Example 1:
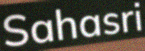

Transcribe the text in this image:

Sahasri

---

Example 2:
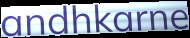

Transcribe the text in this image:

andhkarne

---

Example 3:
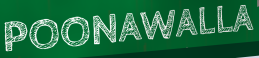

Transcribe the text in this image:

POONAWALLA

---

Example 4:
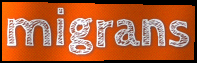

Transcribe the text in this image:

migrans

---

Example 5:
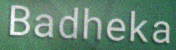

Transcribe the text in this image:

Badheka